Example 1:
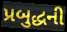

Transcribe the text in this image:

પ્રબુદ્ધની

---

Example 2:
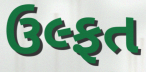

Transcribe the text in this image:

ઉલ્ફત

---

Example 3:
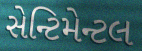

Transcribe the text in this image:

સેન્ટિમેન્ટલ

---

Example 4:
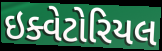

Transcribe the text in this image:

ઇક્વેટોરિયલ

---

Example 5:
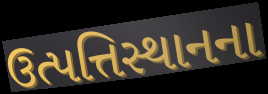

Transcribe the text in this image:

ઉત્પત્તિસ્થાનના